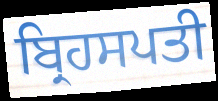
ਬ੍ਰਿਹਸਪਤੀ